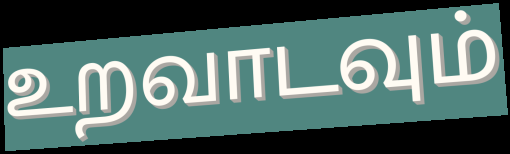
உறவாடவும்